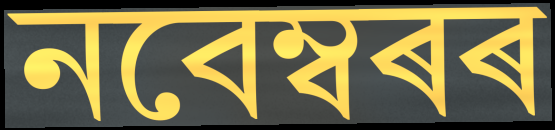
নবেম্বৰৰ